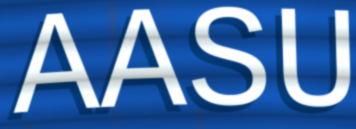
AASU